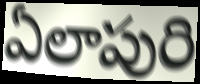
ఏలాపురి